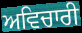
ਅਵਿਚਾਰੀ